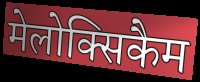
मेलोक्सिकैम